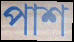
পাশ